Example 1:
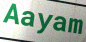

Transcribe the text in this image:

Aayam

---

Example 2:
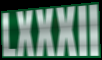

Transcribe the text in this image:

LXXXII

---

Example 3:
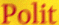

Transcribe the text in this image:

Polit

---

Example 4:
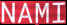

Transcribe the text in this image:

NAMI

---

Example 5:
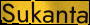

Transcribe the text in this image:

Sukanta